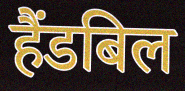
हैंडबिल